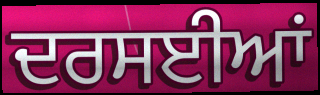
ਦਰਸਈਆਂ